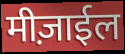
मीज़ाईल